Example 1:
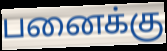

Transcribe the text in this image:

பனைக்கு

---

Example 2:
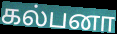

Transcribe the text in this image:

கல்பனா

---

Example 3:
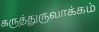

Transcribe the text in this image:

கருத்துருவாக்கம்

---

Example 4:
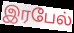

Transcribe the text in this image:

இரபேல்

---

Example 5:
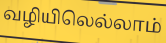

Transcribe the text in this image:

வழியிலெல்லாம்